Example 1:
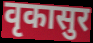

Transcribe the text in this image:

वृकासुर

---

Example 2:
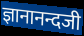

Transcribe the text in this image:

ज्ञानानन्दजी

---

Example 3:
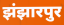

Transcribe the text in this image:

झंझारपुर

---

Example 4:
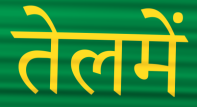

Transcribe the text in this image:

तेलमें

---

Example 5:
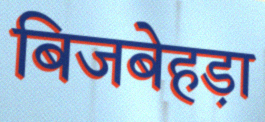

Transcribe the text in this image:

बिजबेहड़ा